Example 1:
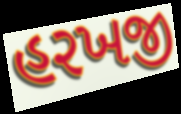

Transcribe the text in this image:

હરખજી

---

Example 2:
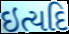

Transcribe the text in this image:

ઇત્યદિ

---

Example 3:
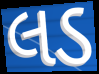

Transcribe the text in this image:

લડ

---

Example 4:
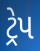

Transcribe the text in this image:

ટ્રેપ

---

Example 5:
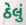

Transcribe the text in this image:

ઠેલું